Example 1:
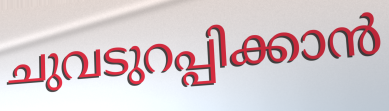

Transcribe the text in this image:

ചുവടുറപ്പിക്കാൻ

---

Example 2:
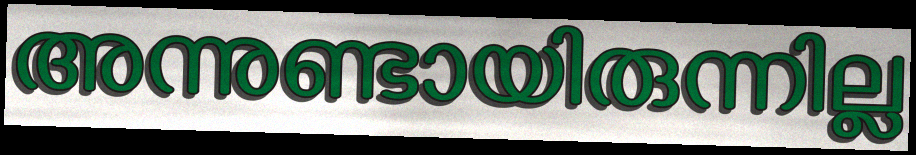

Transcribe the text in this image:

അന്നുണ്ടായിരുന്നില്ല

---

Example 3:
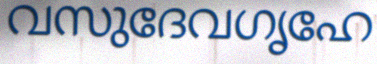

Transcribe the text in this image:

വസുദേവഗൃഹേ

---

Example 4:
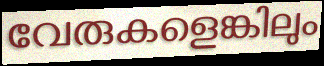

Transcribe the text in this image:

വേരുകളെങ്കിലും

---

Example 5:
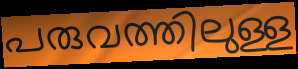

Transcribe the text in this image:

പരുവത്തിലുള്ള